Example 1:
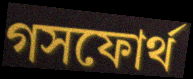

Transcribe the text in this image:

গসফোর্থ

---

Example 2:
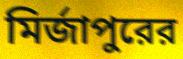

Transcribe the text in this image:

মির্জাপুরের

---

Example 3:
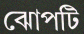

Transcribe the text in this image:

ঝোপটি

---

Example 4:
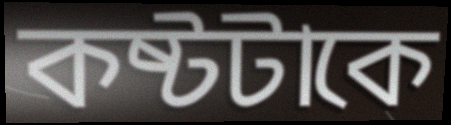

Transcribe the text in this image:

কষ্টটাকে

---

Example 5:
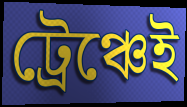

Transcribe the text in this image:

ট্রেঞ্চেই